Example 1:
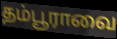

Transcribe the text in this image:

தம்பூராவை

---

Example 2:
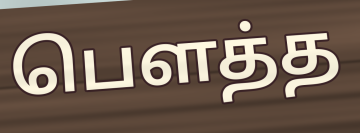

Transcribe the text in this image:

பெளத்த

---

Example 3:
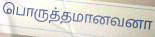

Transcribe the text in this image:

பொருத்தமானவனா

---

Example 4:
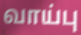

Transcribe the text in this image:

வாய்பு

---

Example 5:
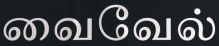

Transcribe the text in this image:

வைவேல்